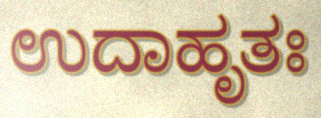
ಉದಾಹೃತಃ